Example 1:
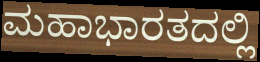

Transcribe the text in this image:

ಮಹಾಭಾರತದಲ್ಲಿ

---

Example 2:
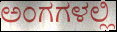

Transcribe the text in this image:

ಅಂಗಗಳಲ್ಲಿ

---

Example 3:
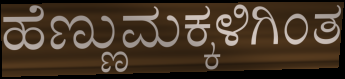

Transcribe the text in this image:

ಹೆಣ್ಣುಮಕ್ಕಳಿಗಿಂತ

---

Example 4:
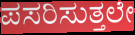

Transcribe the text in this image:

ಪಸರಿಸುತ್ತಲೇ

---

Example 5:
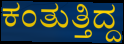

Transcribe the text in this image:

ಕಂತುತ್ತಿದ್ದ